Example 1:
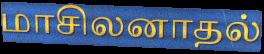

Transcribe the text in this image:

மாசிலனாதல்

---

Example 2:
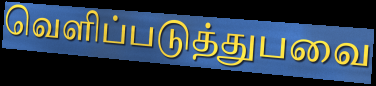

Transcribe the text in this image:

வெளிப்படுத்துபவை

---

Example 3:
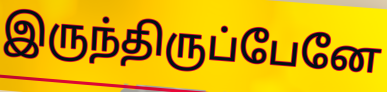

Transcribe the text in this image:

இருந்திருப்பேனே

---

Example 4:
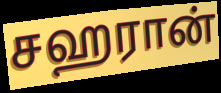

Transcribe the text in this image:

சஹரான்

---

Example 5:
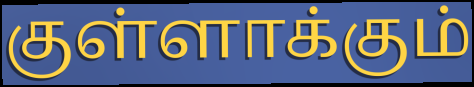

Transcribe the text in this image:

குள்ளாக்கும்